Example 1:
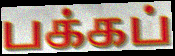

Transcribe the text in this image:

பக்கப்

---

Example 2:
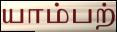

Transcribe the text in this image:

யாம்பற்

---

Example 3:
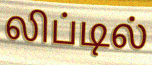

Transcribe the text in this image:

லிப்டில்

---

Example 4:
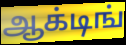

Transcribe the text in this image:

ஆக்டிங்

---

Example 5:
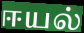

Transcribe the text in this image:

ஈயல்